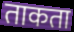
ताकता